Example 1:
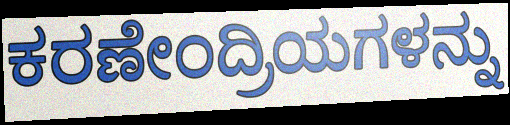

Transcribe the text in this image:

ಕರಣೇಂದ್ರಿಯಗಳನ್ನು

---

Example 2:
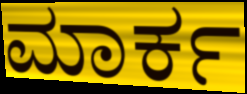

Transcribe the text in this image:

ಮಾರ್ಕ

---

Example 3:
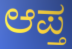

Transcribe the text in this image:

ಆಪ್ತ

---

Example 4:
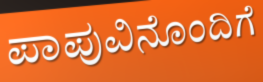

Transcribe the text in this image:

ಪಾಪುವಿನೊಂದಿಗೆ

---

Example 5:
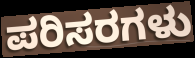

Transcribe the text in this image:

ಪರಿಸರಗಳು